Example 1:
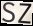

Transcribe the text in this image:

SZ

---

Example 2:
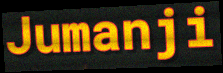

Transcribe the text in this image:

Jumanji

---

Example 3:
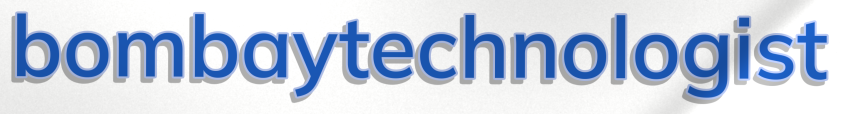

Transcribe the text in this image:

bombaytechnologist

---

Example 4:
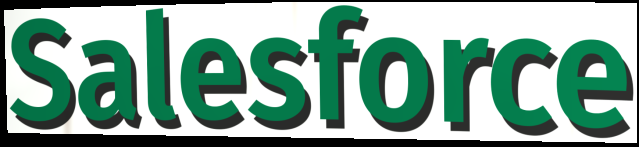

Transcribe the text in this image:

Salesforce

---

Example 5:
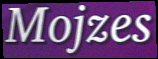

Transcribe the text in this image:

Mojzes